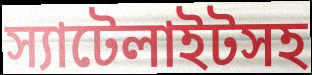
স্যাটেলাইটসহ